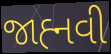
જાહ્‍નવી